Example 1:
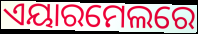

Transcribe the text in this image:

ଏୟାରମେଲରେ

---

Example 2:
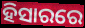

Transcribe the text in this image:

ହିସାରରେ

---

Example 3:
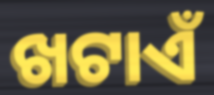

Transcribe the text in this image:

ଖଟାଏଁ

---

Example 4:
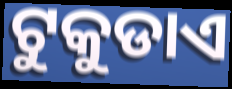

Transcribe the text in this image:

ଟୁକୁଡାଏ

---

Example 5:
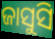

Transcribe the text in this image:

ଜାସୁସି